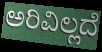
ಅರಿವಿಲ್ಲದೆ